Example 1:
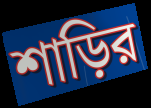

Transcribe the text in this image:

শাড়ির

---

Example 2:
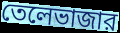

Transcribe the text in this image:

তেলেভাজার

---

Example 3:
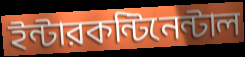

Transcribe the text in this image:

ইন্টারকন্টিনেন্টাল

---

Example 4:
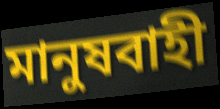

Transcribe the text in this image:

মানুষবাহী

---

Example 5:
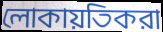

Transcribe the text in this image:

লোকায়তিকরা